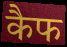
कैफ